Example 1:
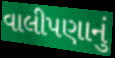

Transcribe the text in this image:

વાલીપણાનું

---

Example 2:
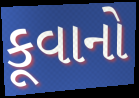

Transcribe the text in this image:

કૂવાનો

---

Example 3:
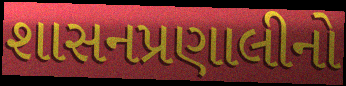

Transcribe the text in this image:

શાસનપ્રણાલીનો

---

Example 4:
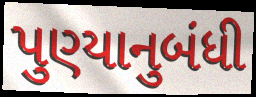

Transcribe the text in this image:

પુણ્યાનુબંધી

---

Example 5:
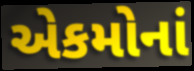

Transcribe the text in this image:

એકમોનાં